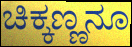
ಚಿಕ್ಕಣ್ಣನೂ